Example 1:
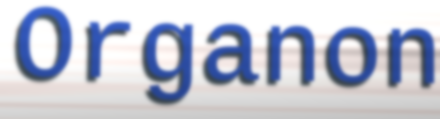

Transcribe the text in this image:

Organon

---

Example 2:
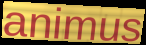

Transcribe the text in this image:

animus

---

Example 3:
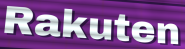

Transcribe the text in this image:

Rakuten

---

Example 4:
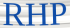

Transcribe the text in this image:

RHP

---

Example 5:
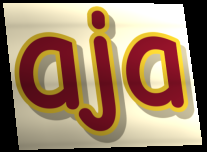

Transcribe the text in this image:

aja